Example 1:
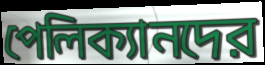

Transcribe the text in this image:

পেলিক্যানদের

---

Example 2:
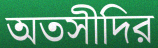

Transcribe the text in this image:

অতসীদির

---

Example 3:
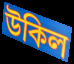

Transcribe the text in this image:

উকিল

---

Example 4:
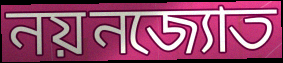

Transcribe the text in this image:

নয়নজ্যোত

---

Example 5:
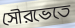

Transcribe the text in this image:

সৌরভেতে